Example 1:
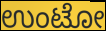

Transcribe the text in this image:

ಉಂಟೋ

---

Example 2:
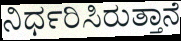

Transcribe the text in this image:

ನಿರ್ಧರಿಸಿರುತ್ತಾನೆ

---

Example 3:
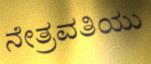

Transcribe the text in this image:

ನೇತ್ರವತಿಯು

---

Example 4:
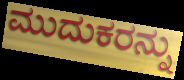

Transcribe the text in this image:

ಮುದುಕರನ್ನು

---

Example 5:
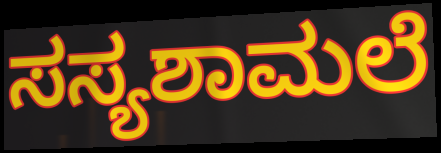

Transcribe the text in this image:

ಸಸ್ಯಶಾಮಲೆ